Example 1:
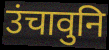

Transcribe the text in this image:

उंचावुनि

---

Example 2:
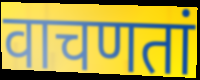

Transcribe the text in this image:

वाचणतां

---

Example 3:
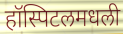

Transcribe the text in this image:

हॉस्पिटलमधली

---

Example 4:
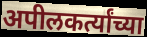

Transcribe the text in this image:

अपीलकर्त्यांच्या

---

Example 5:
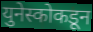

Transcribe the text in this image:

युनेस्कोकडून